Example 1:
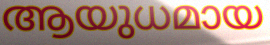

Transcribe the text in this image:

ആയുധമായ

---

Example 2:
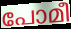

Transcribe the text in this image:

പോമീ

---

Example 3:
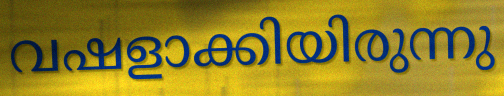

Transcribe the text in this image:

വഷളാക്കിയിരുന്നു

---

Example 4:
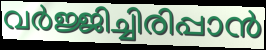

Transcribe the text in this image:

വർജ്ജിച്ചിരിപ്പാൻ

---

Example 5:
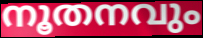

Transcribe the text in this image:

നൂതനവും